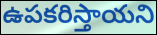
ఉపకరిస్తాయని